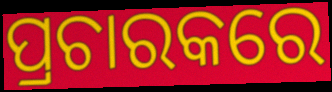
ପ୍ରଚାରକରେ